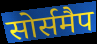
सोर्समैप